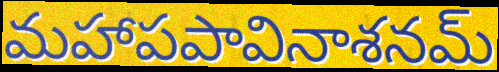
మహాపపావినాశనమ్